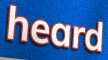
heard